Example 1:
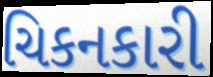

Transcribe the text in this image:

ચિકનકારી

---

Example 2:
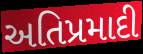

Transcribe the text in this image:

અતિપ્રમાદી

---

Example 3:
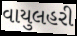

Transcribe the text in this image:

વાયુલહરી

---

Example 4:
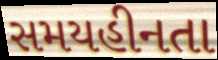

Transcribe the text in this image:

સમયહીનતા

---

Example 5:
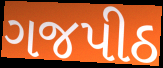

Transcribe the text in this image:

ગજપીઠ